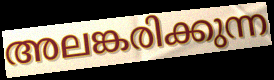
അലങ്കരിക്കുന്ന